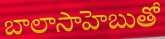
బాలాసాహెబుతో